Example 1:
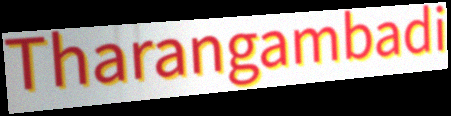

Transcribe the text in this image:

Tharangambadi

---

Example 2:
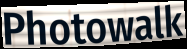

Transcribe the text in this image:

Photowalk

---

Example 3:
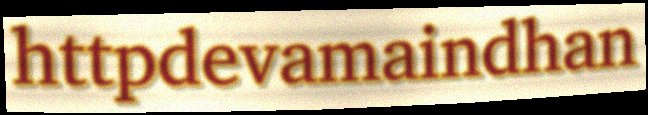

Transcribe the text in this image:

httpdevamaindhan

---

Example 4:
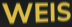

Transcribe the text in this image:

WEIS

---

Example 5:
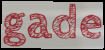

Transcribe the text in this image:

gade